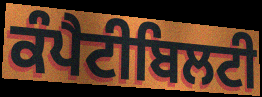
ਕੰਪੈਟੀਬਿਲਟੀ